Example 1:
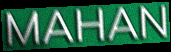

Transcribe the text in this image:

MAHAN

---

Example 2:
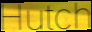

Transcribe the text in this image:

Hutch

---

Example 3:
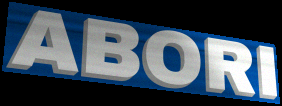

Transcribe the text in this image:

ABORI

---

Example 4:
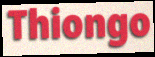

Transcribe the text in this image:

Thiongo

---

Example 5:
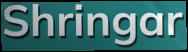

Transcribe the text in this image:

Shringar